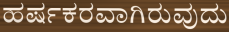
ಹರ್ಷಕರವಾಗಿರುವುದು